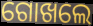
ଗୋଖଲେ